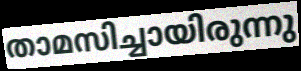
താമസിച്ചായിരുന്നു